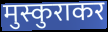
मुस्‍कुराकर